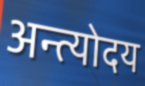
अन्त्योदय